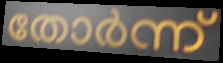
തോർന്ന്